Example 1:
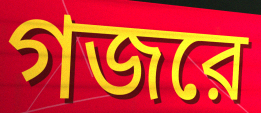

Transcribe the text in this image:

গজরে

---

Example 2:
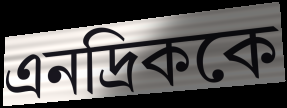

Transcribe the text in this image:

এনদ্রিককে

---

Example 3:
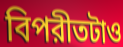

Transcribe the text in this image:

বিপরীতটাও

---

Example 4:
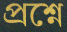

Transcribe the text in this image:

প্রশ্নে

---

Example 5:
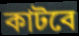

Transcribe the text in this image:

কাটবে